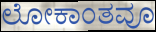
ಲೋಕಾಂತವೂ